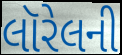
લૉરેલની